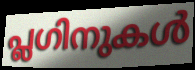
പ്ലഗിനുകൾ